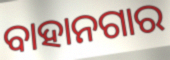
ବାହାନଗାର